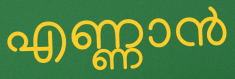
എണ്ണാൻ